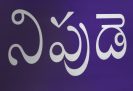
నిపుడె